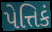
પેત્તિકં